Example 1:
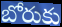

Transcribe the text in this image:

బోరుకు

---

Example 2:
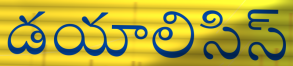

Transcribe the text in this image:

డయాలిసిస్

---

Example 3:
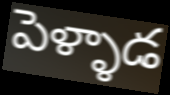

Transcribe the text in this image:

పెళ్ళాడ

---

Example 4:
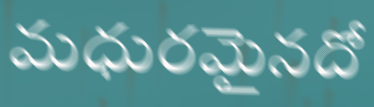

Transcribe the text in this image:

మధురమైనదో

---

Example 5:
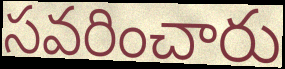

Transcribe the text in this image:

సవరించారు